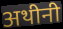
अथीनी